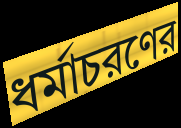
ধর্মাচরণের